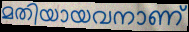
മതിയായവനാണ്